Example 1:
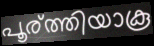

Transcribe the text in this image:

പൂര്ത്തിയാകൂ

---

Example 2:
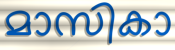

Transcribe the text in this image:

മാസികാ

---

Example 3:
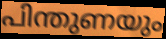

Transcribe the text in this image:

പിന്തുണയും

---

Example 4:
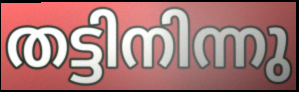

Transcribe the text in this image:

തട്ടിനിന്നു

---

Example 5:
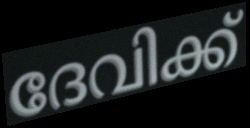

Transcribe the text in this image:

ദേവിക്ക്